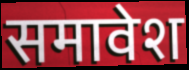
समावेश